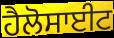
ਹੈਲੋਸਾਈਟ